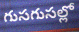
గుసగుసల్లో